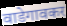
वाडेगावकर